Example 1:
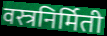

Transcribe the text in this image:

वस्त्रनिर्मिती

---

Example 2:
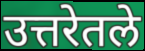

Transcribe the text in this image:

उत्तरेतले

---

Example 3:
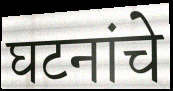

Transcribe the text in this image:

घटनांचे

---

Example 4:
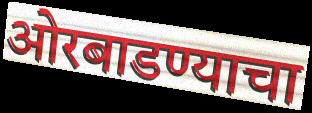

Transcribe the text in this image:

ओरबाडण्याचा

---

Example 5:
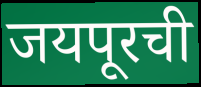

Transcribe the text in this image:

जयपूरची